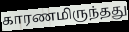
காரணமிருந்தது